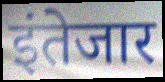
इंतेजार